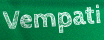
Vempati